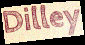
Dilley